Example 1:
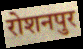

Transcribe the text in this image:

रोशनपुर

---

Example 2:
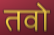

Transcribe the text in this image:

तवो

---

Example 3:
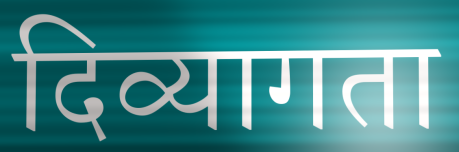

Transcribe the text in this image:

दिव्यागता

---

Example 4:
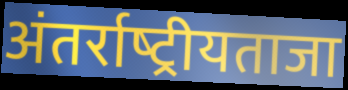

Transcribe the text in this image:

अंतर्राष्ट्रीयताजा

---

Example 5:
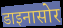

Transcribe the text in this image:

डाइनासोर